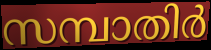
സമ്പാതിർ